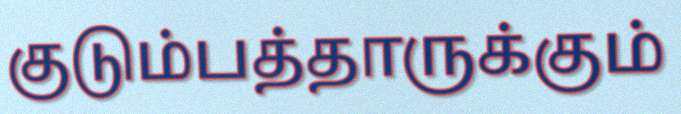
குடும்பத்தாருக்கும்